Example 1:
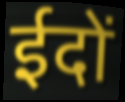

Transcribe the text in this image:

ईदों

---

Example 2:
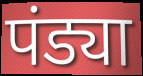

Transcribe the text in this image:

पंड्या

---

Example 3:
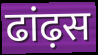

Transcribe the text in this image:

ढांढ़स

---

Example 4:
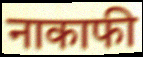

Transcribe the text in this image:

नाकाफी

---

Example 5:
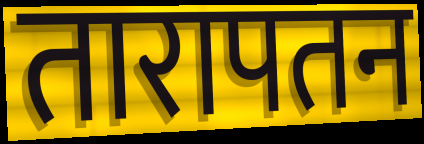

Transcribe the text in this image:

तारापतन